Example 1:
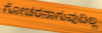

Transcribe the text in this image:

ಗೋಚರನಾಗುವುದಿಲ್ಲ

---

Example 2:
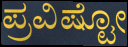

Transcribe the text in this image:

ಪ್ರವಿಷ್ಟೋ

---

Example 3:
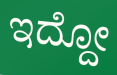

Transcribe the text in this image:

ಇದ್ದೋ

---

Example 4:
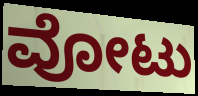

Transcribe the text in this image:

ವೋಟು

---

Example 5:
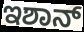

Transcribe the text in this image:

ಇಶಾನ್